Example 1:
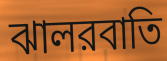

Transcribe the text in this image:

ঝালরবাতি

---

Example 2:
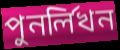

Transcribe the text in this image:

পুনর্লিখন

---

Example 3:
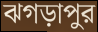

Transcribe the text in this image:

ঝগড়াপুর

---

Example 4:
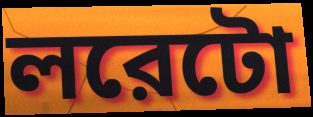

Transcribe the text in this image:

লরেটো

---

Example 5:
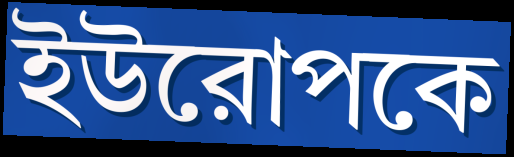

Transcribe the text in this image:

ইউরোপকে